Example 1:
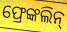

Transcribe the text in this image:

ଫ୍ରେଙ୍କଲିନ୍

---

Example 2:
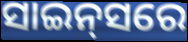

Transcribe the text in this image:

ସାଇନ୍‌ସରେ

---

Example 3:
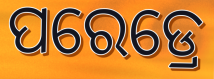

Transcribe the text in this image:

ପରେଡ୍ରେ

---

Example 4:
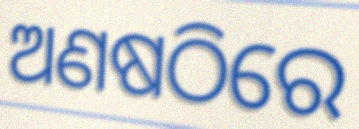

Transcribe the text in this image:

ଅଣଷଠିରେ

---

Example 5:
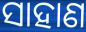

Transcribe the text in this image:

ସାହାଣ